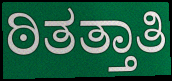
ಠಿತತ್ತಾತಿ